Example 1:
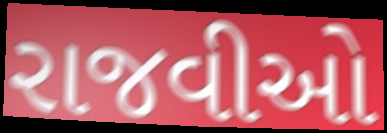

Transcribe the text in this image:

રાજવીઓ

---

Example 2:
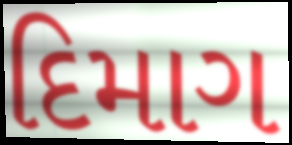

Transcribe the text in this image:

દિમાગ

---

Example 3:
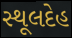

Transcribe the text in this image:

સ્થૂલદેહ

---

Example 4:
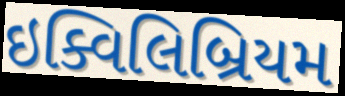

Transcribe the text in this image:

ઇક્વિલિબ્રિયમ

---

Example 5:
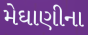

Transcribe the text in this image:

મેઘાણીના